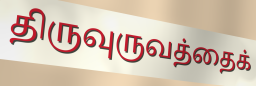
திருவுருவத்தைக்